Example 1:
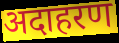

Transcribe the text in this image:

अदाहरण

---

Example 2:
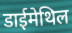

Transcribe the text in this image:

डाईमेथिल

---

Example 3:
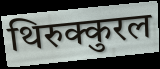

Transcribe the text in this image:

थिरुक्कुरल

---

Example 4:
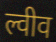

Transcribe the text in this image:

ल्वीव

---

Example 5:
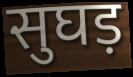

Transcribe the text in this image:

सुघड़